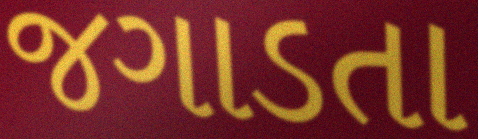
જગાડતા